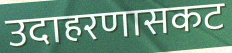
उदाहरणासकट